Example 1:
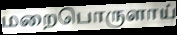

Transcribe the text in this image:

மறைபொருளாய்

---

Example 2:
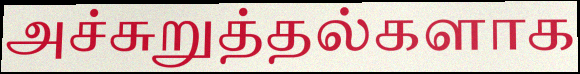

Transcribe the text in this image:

அச்சுறுத்தல்களாக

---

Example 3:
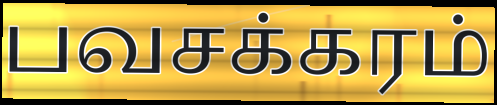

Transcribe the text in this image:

பவசக்கரம்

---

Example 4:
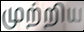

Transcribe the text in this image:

முற்றிய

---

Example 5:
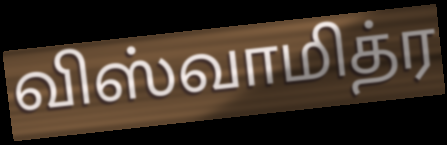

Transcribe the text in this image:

விஸ்வாமித்ர